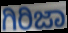
ಗಿರಿಜಾ